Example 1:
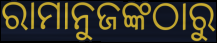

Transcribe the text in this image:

ରାମାନୁଜଙ୍କଠାରୁ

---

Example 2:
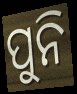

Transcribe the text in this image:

ପୁନି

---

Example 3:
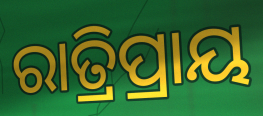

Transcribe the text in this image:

ରାତ୍ରିପ୍ରାୟ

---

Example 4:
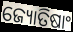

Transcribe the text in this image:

ଜ୍ୟୋତିଷାଂ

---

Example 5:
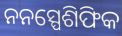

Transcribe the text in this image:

ନନସ୍ପେଶିଫିକ